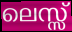
ലെസ്സ്